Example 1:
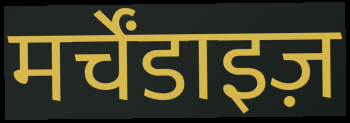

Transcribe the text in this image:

मर्चेंडाइज़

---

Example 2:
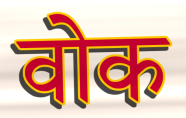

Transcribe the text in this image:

वोक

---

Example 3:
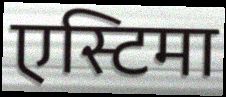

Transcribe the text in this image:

एस्टिमा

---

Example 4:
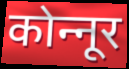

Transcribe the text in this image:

कोन्नूर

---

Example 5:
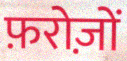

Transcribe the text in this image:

फ़रोज़ों